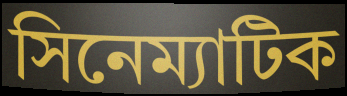
সিনেম্যাটিক